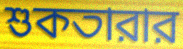
শুকতারার